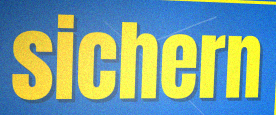
sichern